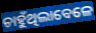
ଚାହୁଁଥିଲାବେଳେ